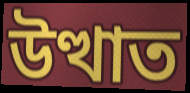
উত্থাত